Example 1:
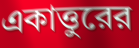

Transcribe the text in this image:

একাত্তুরের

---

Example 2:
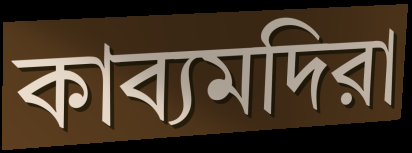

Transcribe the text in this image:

কাব্যমদিরা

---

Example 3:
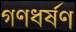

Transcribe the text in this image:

গণধর্ষণ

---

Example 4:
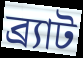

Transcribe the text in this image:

ব্র্যাট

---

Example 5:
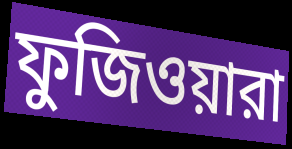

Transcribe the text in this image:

ফুজিওয়ারা